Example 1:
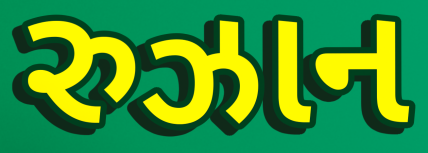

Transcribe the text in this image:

રુઝાન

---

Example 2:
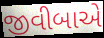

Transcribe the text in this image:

જીવીબાએ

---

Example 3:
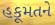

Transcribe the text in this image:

હકૂમતને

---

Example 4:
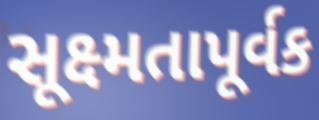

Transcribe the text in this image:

સૂક્ષ્મતાપૂર્વક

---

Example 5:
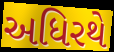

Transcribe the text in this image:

અધિરથે